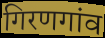
गिरणगांव